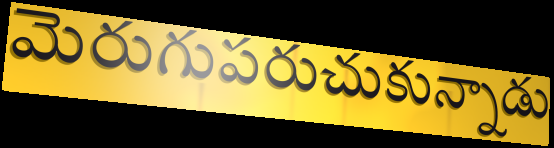
మెరుగుపరుచుకున్నాడు